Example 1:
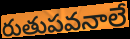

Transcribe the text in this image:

రుతుపవనాలే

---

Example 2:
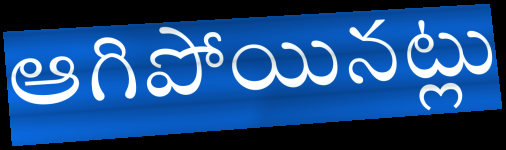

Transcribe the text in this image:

ఆగిపోయినట్లు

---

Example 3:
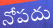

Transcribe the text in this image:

నోపదు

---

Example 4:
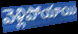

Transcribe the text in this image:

వెళ్లిపోయాయి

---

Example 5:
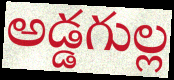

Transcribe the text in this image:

అడ్డగుల్ల